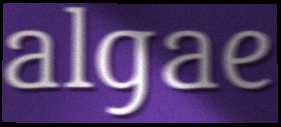
algae